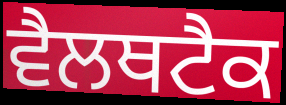
ਵੈਲਥਟੈਕ